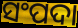
ସଂପଦା